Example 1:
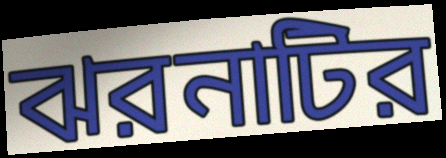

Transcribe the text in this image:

ঝরনাটির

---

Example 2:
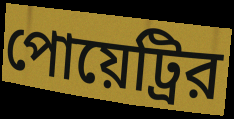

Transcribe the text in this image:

পোয়েট্রির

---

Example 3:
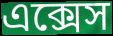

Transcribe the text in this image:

এক্সেস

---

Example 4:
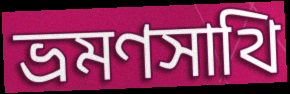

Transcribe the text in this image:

ভ্রমণসাথি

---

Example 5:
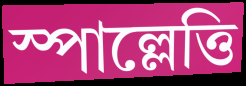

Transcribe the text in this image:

স্পাল্লেত্তি